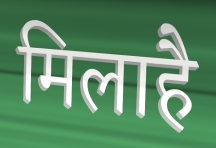
मिलाहै